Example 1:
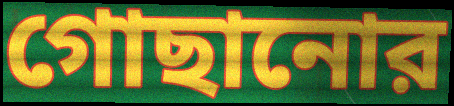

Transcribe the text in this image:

গোছানোর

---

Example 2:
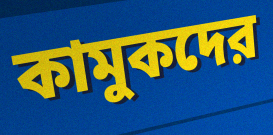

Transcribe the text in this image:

কামুকদের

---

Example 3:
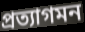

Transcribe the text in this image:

প্রত্যাগমন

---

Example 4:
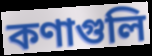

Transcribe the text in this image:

কণাগুলি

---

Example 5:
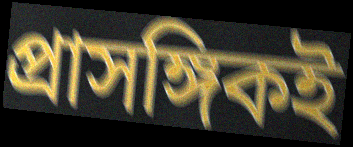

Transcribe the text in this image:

প্রাসঙ্গিকই